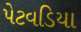
પેટવડિયા